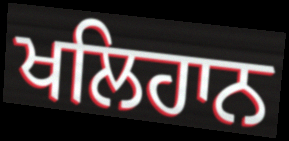
ਖਲਿਹਾਨ